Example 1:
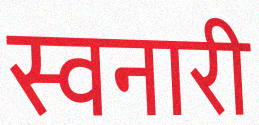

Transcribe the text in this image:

स्वनारी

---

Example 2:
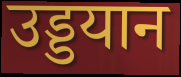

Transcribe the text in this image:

उड्डयान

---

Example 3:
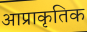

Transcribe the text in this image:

आप्राकृतिक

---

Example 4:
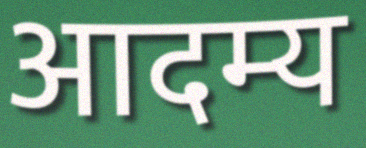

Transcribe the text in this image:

आदम्य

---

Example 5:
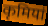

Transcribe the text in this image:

कृमियां